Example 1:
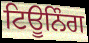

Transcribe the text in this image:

ਟਿਊਨਿੰਗ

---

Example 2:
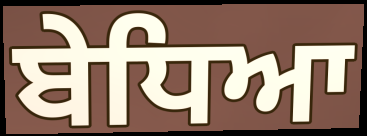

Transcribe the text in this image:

ਬੇਧਿਆ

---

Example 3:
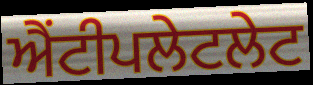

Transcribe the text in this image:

ਐਂਟੀਪਲੇਟਲੇਟ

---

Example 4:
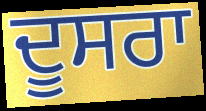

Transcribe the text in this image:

ਦੂਸਰਾ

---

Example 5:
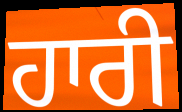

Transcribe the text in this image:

ਹਾਰੀ